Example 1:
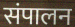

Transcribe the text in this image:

संपालन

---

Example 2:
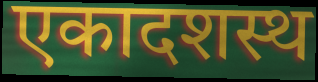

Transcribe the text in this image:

एकादशस्थ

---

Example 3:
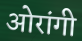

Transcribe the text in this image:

ओरांगी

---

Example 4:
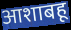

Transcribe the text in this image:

आशाबहू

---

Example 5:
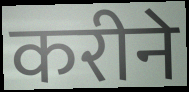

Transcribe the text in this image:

करीने